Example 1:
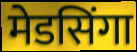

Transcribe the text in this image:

मेडसिंगा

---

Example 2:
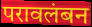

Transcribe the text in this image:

परावलंबन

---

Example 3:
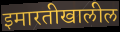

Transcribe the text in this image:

इमारतीखालील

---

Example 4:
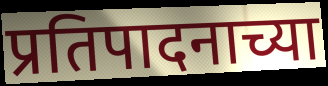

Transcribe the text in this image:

प्रतिपादनाच्या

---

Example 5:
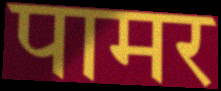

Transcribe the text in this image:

पामर